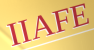
IIAFE